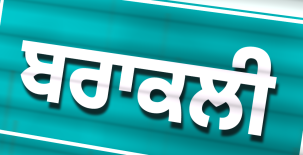
ਬਰਾਕਲੀ